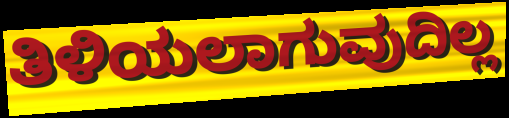
ತಿಳಿಯಲಾಗುವುದಿಲ್ಲ